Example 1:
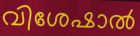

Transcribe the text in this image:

വിശേഷാൽ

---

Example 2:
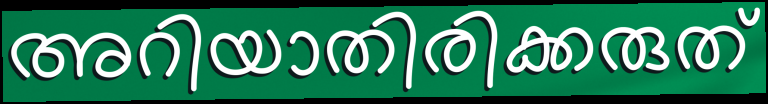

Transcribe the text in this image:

അറിയാതിരിക്കരുത്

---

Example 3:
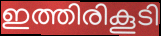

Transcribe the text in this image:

ഇത്തിരികൂടി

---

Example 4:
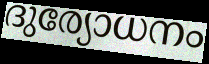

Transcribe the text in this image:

ദുര്യോധനം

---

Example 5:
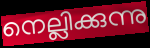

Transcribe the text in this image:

നെല്ലിക്കുന്നു